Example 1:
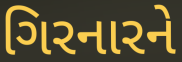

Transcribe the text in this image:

ગિરનારને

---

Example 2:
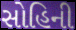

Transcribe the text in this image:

સોહિની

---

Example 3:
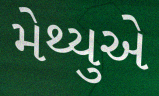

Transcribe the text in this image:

મેથ્યુએ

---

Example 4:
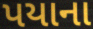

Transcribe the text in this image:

પયાના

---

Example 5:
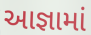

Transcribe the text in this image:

આજ્ઞામાં